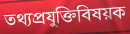
তথ্যপ্রযুক্তিবিষয়ক